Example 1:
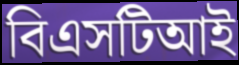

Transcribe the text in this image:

বিএসটিআই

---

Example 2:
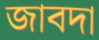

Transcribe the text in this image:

জাবদা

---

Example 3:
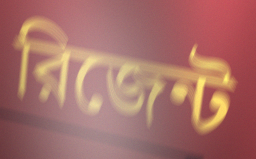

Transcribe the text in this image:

রিজেন্ট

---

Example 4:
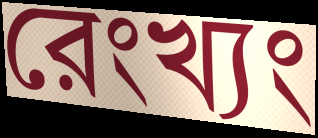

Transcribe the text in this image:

রেংখ্যং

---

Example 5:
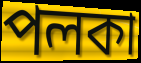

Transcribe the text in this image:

পলকা